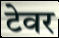
टेवर